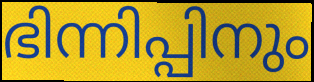
ഭിന്നിപ്പിനും